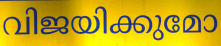
വിജയിക്കുമോ